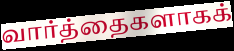
வார்த்தைகளாகக்